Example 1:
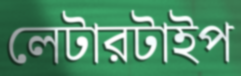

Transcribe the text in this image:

লেটারটাইপ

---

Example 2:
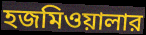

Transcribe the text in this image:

হজমিওয়ালার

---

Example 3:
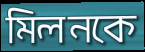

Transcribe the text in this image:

মিলনকে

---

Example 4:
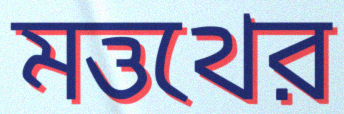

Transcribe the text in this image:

মত্তথের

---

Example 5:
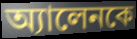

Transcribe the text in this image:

অ্যালেনকে